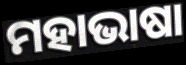
ମହାଭାଷା